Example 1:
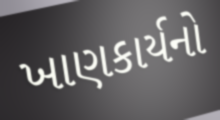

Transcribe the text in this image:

ખાણકાર્યનો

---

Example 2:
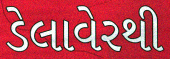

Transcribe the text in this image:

ડેલાવેરથી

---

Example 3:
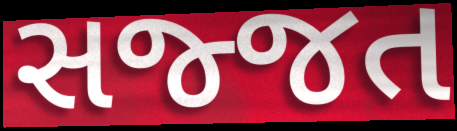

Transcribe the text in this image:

સજ્જત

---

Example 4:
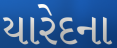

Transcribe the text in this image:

યારેદના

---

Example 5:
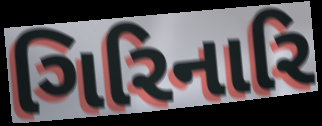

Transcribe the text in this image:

ગિરિનારિ